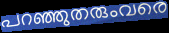
പറഞ്ഞുതരുംവരെ